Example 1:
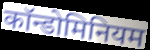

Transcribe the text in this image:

कॉन्डोमिनियम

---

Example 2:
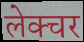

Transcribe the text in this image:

लेक्चर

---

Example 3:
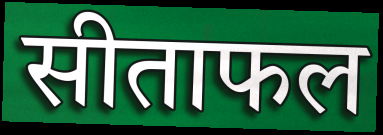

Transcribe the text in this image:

सीताफल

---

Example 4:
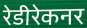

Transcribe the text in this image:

रेडीरेकनर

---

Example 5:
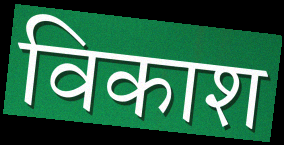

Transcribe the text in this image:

विकाश